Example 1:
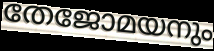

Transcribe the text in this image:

തേജോമയനും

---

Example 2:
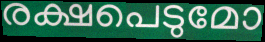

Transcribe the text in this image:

രക്ഷപെടുമോ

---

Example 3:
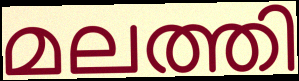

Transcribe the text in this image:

മലത്തി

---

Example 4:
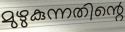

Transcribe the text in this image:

മുഴുകുന്നതിന്റെ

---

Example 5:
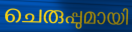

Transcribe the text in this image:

ചെരുപ്പുമായി